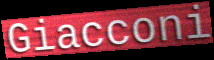
Giacconi